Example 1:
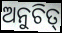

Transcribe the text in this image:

ଅନୁଚିତ୍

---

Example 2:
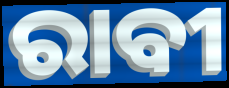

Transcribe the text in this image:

ରାବୀ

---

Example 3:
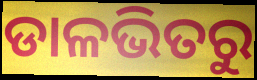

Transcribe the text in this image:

ଡାଳଭିତରୁ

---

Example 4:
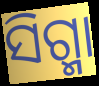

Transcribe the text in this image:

ସିଗ୍ମା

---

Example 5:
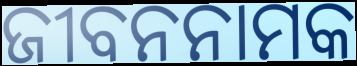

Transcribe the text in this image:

ଜୀବନନାମକ